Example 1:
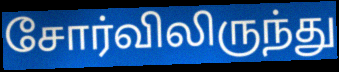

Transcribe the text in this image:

சோர்விலிருந்து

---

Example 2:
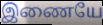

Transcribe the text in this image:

இணையே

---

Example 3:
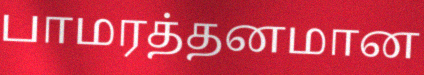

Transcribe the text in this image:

பாமரத்தனமான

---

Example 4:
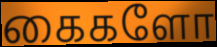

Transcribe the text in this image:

கைகளோ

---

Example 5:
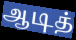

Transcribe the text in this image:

ஆடித்